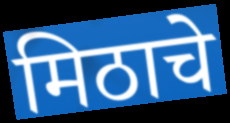
मिठाचे